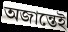
অজান্তেই